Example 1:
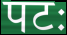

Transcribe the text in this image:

पटः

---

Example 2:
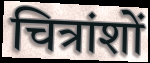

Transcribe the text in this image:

चित्रांशों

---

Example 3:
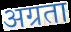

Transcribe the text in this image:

अग्रता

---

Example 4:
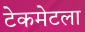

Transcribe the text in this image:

टेकमेटला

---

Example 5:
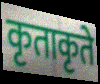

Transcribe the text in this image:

कृताकृते